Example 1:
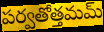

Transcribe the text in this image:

పర్వతోత్తమమ్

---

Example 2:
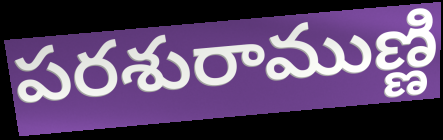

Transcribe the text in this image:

పరశురాముణ్ణి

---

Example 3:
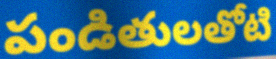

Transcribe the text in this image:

పండితులతోటి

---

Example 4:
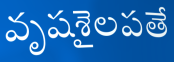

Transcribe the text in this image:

వృషశైలపతే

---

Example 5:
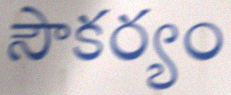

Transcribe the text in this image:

సౌకర్యం